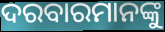
ଦରବାରମାନଙ୍କୁ